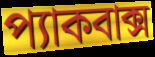
প্যাকবাক্স